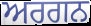
ਅਰਗਨ